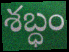
శబ్ధం